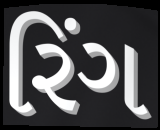
રિંગ